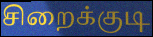
சிறைக்குடி